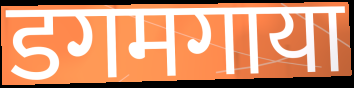
डगमगाया